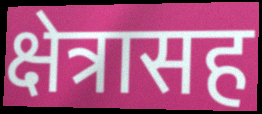
क्षेत्रासह